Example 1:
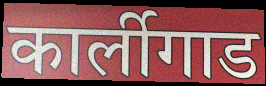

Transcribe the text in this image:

कार्लीगाड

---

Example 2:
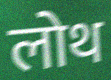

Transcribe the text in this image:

लोथ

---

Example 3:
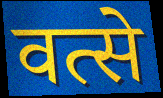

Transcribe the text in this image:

वत्से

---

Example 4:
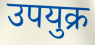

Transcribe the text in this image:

उपयुक्र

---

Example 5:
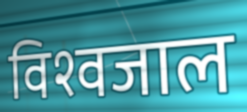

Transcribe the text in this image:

विश्वजाल